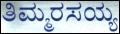
ತಿಮ್ಮರಸಯ್ಯ